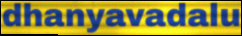
dhanyavadalu